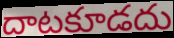
దాటకూడదు